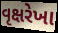
વૃક્ષરેખા